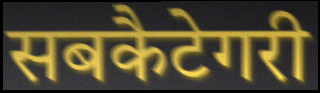
सबकैटेगरी